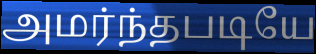
அமர்ந்தபடியே